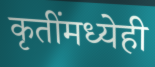
कृतींमध्येही